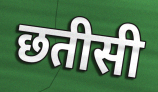
छतीसी